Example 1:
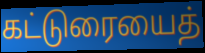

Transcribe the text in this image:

கட்டுரையைத்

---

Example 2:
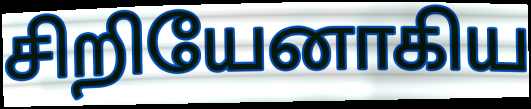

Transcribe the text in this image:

சிறியேனாகிய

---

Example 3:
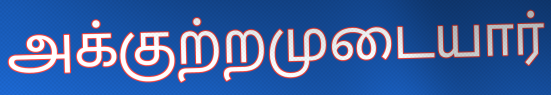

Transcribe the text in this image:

அக்குற்றமுடையார்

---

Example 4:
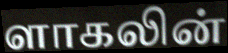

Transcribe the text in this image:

ளாகலின்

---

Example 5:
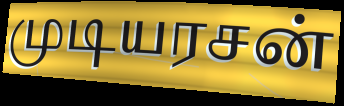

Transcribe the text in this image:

முடியரசன்